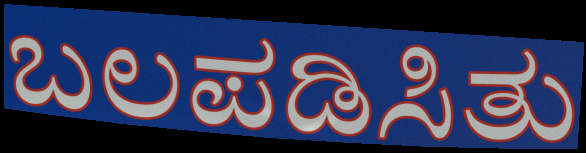
ಬಲಪಡಿಸಿತು